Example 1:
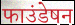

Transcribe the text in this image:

फाउंडेषन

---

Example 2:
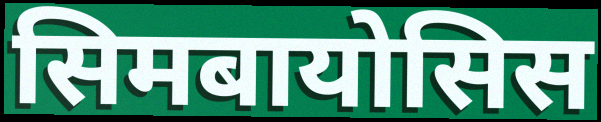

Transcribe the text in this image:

सिमबायोसिस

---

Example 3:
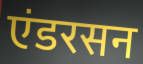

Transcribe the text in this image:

एंडरसन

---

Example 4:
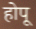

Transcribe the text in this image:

होपू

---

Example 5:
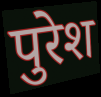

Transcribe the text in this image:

पुरेश